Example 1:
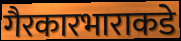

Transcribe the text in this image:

गैरकारभाराकडे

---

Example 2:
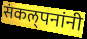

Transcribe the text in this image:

संकल्पनांनी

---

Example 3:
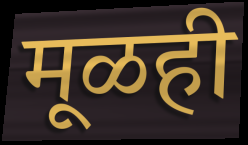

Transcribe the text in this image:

मूळही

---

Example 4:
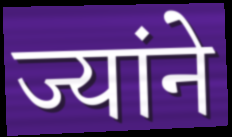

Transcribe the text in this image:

ज्यांने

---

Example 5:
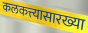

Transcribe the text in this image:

कलकत्त्यासारख्या